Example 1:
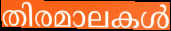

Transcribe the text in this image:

തിരമാലകൾ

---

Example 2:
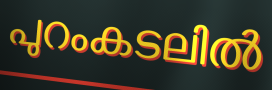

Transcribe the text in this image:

പുറംകടലിൽ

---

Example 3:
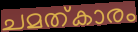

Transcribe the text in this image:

ചമത്കാരം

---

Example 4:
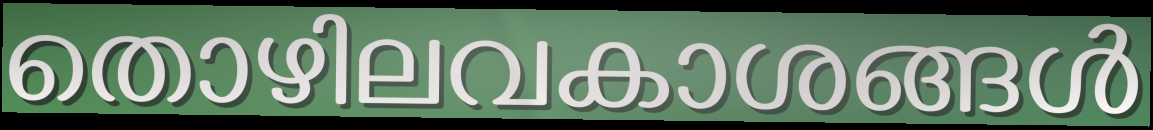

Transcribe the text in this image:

തൊഴിലവകാശങ്ങൾ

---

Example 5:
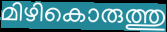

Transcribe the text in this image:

മിഴികൊരുത്തു